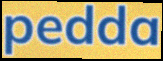
pedda